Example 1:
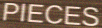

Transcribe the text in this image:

PIECES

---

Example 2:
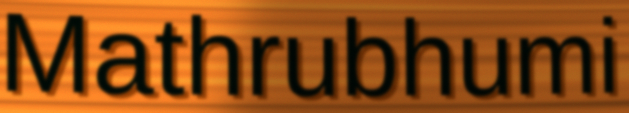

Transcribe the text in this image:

Mathrubhumi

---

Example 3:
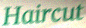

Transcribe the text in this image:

Haircut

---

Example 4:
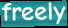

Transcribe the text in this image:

freely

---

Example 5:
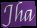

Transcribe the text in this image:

Jha